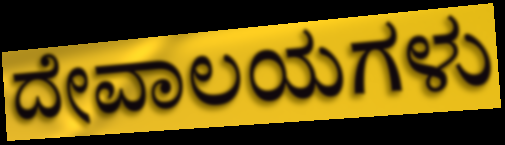
ದೇವಾಲಯಗಳು